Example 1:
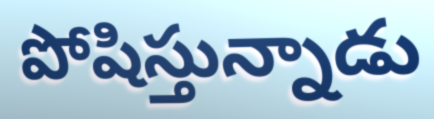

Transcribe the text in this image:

పోషిస్తున్నాడు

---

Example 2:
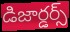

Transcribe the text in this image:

డిజార్డర్స్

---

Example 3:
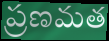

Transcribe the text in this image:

ప్రణమత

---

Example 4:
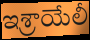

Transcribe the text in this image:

ఇశ్రాయేలీ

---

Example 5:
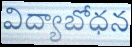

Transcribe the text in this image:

విద్యాబోధన